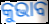
କୁଭାବ